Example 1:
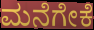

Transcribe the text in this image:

ಮನೆಗೇಕೆ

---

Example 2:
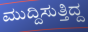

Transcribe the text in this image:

ಮುದ್ದಿಸುತ್ತಿದ್ದ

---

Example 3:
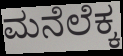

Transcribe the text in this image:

ಮನೆಲೆಕ್ಕ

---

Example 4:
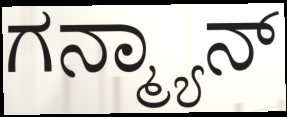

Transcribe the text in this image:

ಗನ್ಮ್ಯಾನ್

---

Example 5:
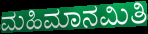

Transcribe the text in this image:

ಮಹಿಮಾನಮಿತಿ